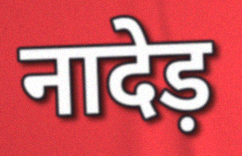
नादेड़